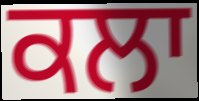
ਕਲਾ